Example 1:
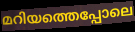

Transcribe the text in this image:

മറിയത്തെപ്പോലെ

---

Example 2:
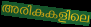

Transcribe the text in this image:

അരികുകളിലെ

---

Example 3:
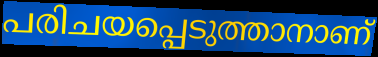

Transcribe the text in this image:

പരിചയപ്പെടുത്താനാണ്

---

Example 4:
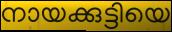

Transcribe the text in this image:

നായക്കുട്ടിയെ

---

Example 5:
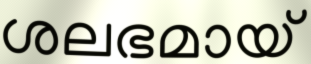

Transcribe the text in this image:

ശലഭമായ്